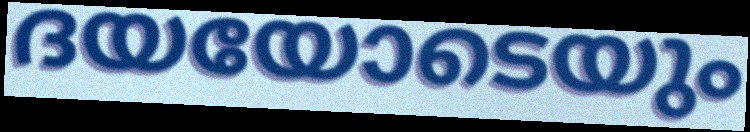
ദയയോടെയും